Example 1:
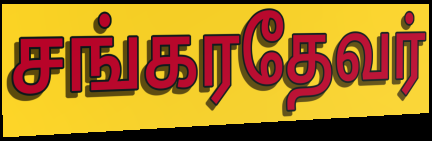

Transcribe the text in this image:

சங்கரதேவர்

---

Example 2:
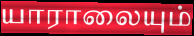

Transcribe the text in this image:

யாராலையும்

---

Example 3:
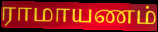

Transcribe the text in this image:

ராமாயணம்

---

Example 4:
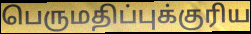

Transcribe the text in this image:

பெருமதிப்புக்குரிய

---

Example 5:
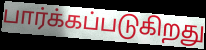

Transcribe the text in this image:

பார்க்கப்படுகிறது